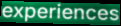
experiences